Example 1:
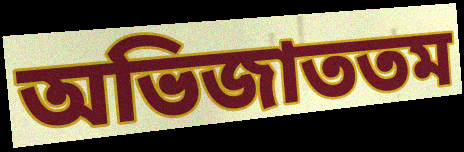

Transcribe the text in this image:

অভিজাততম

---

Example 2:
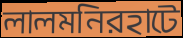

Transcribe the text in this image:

লালমনিরহাটে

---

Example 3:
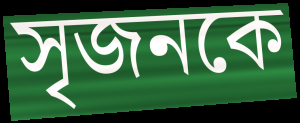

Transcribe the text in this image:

সৃজনকে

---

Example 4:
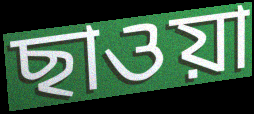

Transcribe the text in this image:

ছাওয়া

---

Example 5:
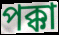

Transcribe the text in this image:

পক্কা